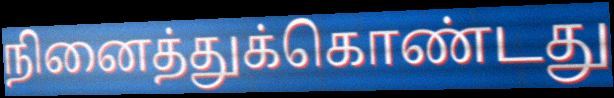
நினைத்துக்கொண்டது